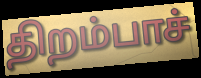
திறம்பாச்